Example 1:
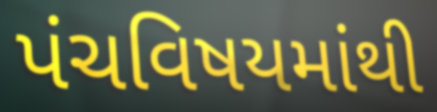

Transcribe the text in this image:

પંચવિષયમાંથી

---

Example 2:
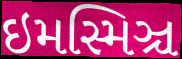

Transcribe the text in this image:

ઇમસ્મિઞ્ચ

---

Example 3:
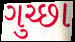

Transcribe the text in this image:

ગુચ્છા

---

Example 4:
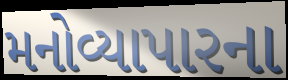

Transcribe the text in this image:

મનોવ્યાપારના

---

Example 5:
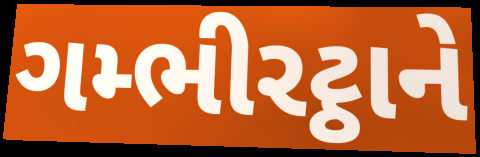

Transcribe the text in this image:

ગમ્ભીરટ્ઠાને